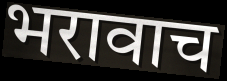
भरावाच